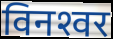
विनश्वर